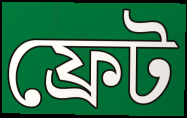
ফ্রেট